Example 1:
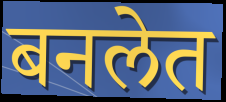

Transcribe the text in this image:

बनलेत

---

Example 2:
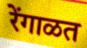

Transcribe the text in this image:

रेंगाळत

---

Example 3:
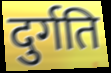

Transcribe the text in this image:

दुर्गति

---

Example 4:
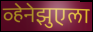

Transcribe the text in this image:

व्हेनेझुएला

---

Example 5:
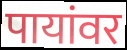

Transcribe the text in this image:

पायांवर